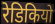
रेडिकियो